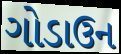
ગોડાઉન